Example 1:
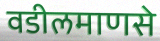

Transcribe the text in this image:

वडीलमाणसे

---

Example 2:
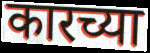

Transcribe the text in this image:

कारच्या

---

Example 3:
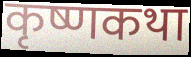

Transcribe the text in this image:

कृष्णकथा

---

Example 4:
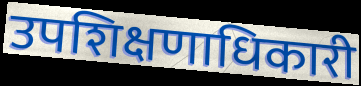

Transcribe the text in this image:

उपशिक्षणाधिकारी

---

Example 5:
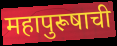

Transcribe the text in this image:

महापुरूषाची